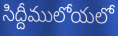
సిద్దీములోయలో